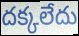
దక్కలేదు